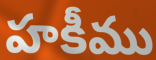
హకీము